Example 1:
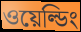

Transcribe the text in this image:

ওয়েল্ডিং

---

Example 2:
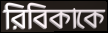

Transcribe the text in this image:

রিবিকাকে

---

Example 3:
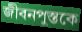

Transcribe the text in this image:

জীবনপুস্তকে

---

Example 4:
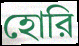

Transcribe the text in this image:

হোরি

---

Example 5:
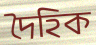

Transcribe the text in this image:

দৈহিক